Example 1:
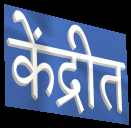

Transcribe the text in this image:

केंद्रीत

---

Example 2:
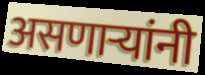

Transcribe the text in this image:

असणाऱ्यांनी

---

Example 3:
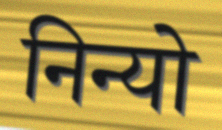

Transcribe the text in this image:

निन्यो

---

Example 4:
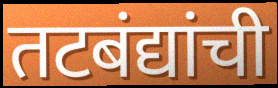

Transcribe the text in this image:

तटबंद्यांची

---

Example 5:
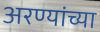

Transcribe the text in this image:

अरण्यांच्या